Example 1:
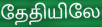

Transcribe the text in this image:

தேதியிலே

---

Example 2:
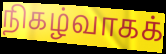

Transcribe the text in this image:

நிகழ்வாகக்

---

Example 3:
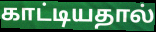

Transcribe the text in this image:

காட்டியதால்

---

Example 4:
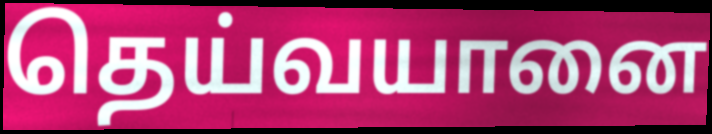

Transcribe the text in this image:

தெய்வயானை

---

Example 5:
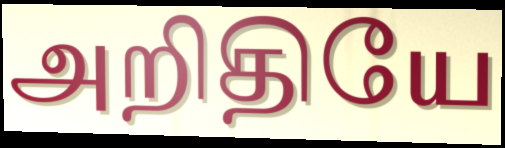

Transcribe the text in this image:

அறிதியே